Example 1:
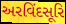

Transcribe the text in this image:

અરવિંદસૂરિ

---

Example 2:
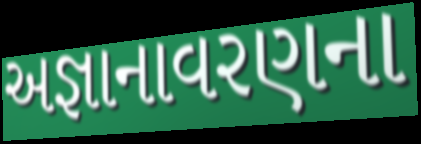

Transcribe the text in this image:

અજ્ઞાનાવરણના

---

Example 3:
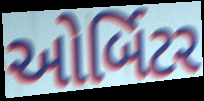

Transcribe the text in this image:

ઓર્બિટર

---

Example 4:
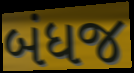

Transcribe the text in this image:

બંધજ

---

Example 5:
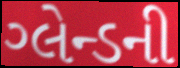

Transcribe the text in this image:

ગ્લેન્ડની